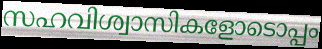
സഹവിശ്വാസികളോടൊപ്പം